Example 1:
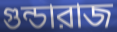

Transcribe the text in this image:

গুন্ডারাজ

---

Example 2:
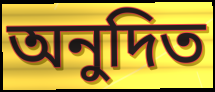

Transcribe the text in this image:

অনুদিত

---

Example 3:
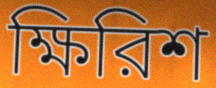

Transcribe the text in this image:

ক্ষিরিশ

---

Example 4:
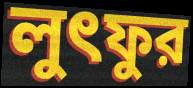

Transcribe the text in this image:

লুৎফুর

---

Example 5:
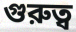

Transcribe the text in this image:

গুরুত্ব